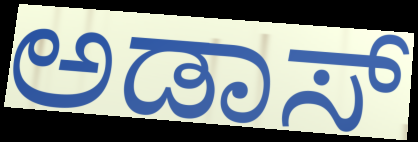
ಅಡಾಸ್